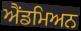
ਐਂਡਮਿਅਨ